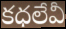
కధలేవీ